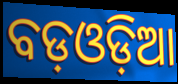
ବଡ଼ଓଡ଼ିଆ